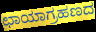
ಛಾಯಾಗ್ರಹಣದ